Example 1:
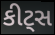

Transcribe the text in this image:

કીટ્સ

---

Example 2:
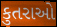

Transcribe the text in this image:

કુતરાઓ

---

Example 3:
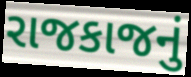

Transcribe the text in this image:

રાજકાજનું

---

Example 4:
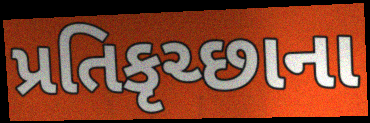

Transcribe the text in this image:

પ્રતિકૃચ્છાના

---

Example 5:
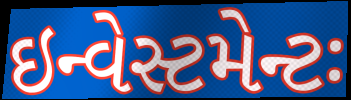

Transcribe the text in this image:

ઇન્વેસ્ટમેન્ટઃ